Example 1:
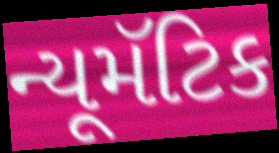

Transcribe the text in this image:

ન્યૂમૅટિક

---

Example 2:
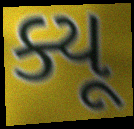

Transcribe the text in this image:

ક્યૂ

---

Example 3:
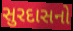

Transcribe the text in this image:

સુરદાસનો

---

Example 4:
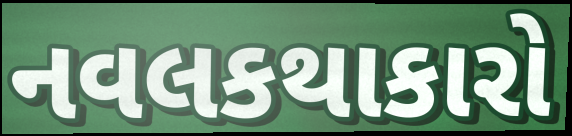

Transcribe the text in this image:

નવલકથાકારો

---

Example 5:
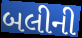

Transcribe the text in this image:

બલીની